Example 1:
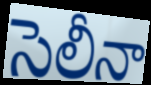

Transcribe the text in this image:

సెలీనా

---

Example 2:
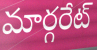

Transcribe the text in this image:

మార్గరేట్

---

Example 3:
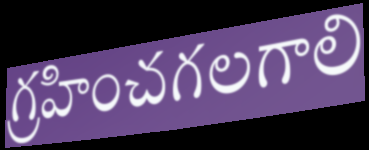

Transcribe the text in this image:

గ్రహించగలగాలి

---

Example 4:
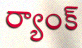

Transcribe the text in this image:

ర్యాంక్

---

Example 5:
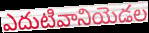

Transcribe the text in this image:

ఎదుటివానియెడల